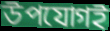
উপযোগই